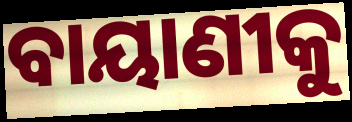
ବାୟାଣୀକୁ